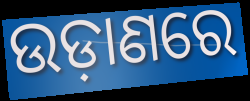
ଉଡ଼ାଣରେ